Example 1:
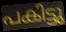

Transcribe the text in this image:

പകിട്ടു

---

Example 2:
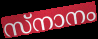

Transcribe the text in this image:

സ്നാനം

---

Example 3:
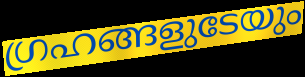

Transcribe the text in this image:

ഗ്രഹങ്ങളുടേയും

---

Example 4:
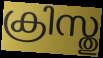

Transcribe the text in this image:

ക്രിസ്തു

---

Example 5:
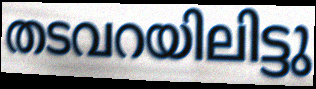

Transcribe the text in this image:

തടവറയിലിട്ടു